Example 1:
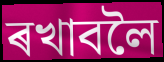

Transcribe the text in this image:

ৰখাবলৈ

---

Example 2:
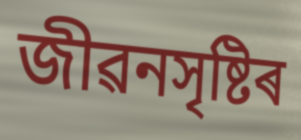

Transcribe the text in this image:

জীৱনসৃষ্টিৰ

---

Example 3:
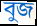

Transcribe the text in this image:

বুজ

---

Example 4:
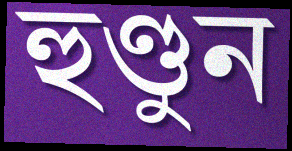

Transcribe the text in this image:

হুণ্ডুন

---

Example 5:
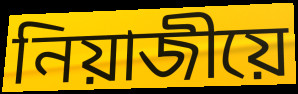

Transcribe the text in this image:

নিয়াজীয়ে